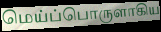
மெய்ப்பொருளாகிய